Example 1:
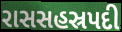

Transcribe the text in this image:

રાસસહસ્રપદી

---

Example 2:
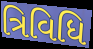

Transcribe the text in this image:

ત્રિવિધિ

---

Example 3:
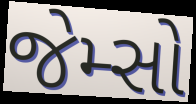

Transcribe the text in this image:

જેમ્સો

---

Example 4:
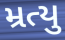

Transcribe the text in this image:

મ્રત્યુ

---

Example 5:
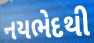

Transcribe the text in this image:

નયભેદથી